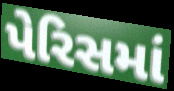
પેરિસમાં